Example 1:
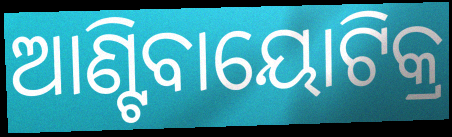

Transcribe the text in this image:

ଆଣ୍ଟିବାୟୋଟିକ୍ର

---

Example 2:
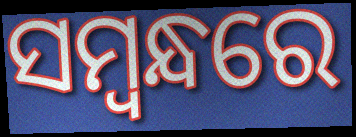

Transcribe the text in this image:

ସମ୍ୱନ୍ଧରେ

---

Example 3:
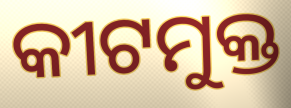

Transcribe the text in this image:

କୀଟମୁକ୍ତ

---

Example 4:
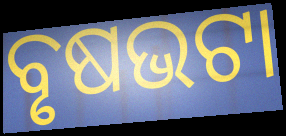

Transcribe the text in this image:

ବୃଷଭଟା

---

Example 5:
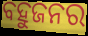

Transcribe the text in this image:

ବହୁଜନର